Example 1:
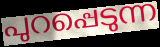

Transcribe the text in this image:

പുറപ്പെടുന്ന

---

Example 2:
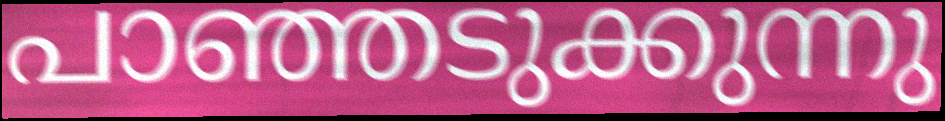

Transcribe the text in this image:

പാഞ്ഞടുക്കുന്നു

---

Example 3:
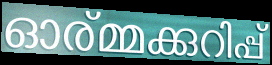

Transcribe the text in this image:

ഓര്മ്മക്കുറിപ്പ്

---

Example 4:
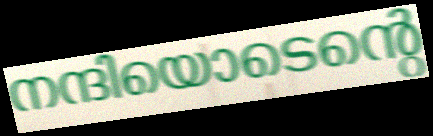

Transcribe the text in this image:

നന്ദിയൊടെന്റെ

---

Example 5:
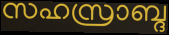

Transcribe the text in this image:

സഹസ്രാബ്ദ